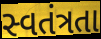
સ્વતંત્રતા